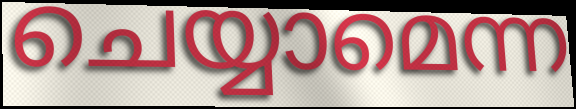
ചെയ്യാമെന്ന